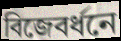
বিজেবর্ধনে